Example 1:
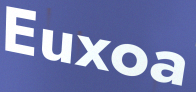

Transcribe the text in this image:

Euxoa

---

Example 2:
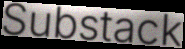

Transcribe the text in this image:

Substack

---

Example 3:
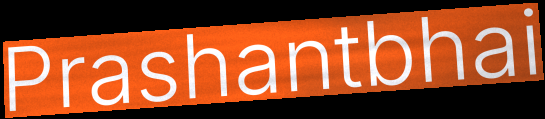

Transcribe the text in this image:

Prashantbhai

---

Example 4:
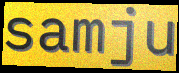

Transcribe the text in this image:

samju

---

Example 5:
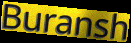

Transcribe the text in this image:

Buransh